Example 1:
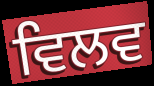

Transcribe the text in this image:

ਵਿਲਵ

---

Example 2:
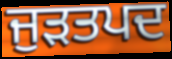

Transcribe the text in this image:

ਜੁੜਤਪਦ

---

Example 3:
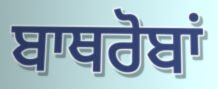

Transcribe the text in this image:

ਬਾਥਰੋਬਾਂ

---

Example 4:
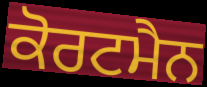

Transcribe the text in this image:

ਕੋਰਟਮੈਨ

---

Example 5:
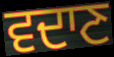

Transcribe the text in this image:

ਵਦਾਣ